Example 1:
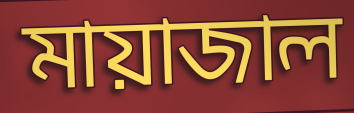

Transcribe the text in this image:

মায়াজাল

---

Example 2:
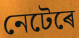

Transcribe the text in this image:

নেটেৰে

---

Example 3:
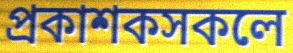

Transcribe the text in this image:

প্ৰকাশকসকলে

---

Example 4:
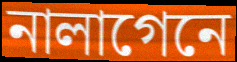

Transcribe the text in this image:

নালাগেনে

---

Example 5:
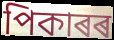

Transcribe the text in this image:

পিকাৰৰ